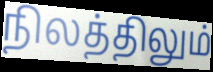
நிலத்திலும்